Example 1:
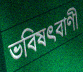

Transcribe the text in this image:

ভবিষৎবাণী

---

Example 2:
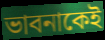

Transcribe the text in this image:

ভাবনাকেই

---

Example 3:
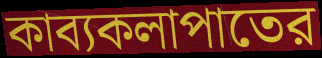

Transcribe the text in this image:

কাব্যকলাপাতের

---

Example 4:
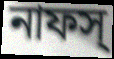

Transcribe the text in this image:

নাফস্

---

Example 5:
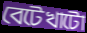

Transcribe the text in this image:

বেটেখাটো